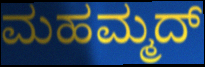
ಮಹಮ್ಮದ್